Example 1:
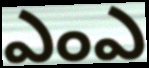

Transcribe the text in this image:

ఎంఎ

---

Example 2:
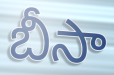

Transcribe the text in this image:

బీసా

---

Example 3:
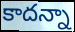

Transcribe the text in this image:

కాదన్నా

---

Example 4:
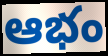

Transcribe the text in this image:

ఆభం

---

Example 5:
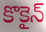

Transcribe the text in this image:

కొకైన్